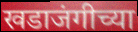
खडाजंगीच्या